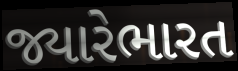
જ્યારેભારત